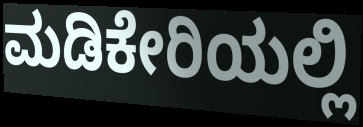
ಮಡಿಕೇರಿಯಲ್ಲಿ